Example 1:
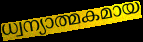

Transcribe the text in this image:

ധ്വന്യാത്മകമായ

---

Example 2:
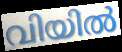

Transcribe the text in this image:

വിയിൽ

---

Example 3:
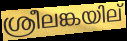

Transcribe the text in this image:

ശ്രീലങ്കയില്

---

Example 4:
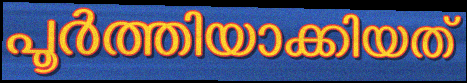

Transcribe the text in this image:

പൂർത്തിയാക്കിയത്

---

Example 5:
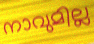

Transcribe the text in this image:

നാവുമില്ല